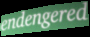
endengered